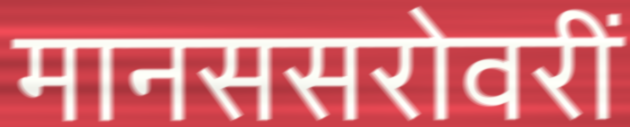
मानससरोवरीं